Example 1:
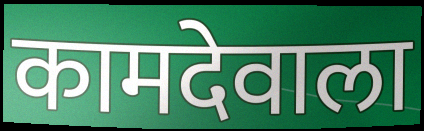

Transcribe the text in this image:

कामदेवाला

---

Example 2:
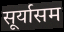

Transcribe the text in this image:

सूर्यासम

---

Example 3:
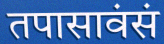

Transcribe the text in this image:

तपासावंसं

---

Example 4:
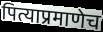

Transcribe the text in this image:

पित्याप्रमाणेच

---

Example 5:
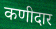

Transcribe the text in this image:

कणीदार